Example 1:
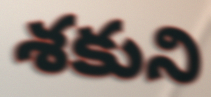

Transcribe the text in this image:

శకుని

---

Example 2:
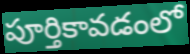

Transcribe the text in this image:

పూర్తికావడంలో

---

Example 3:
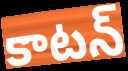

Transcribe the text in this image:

కాటన్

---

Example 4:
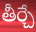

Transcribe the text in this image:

తీర్చే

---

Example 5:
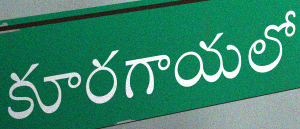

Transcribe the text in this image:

కూరగాయలో